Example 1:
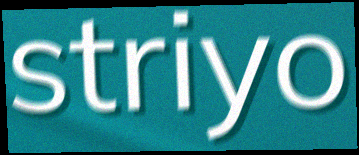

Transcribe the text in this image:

striyo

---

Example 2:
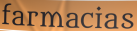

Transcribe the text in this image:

farmacias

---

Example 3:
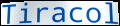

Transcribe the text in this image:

Tiracol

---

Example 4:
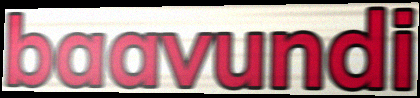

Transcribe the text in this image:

baavundi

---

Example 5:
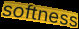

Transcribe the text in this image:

softness